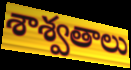
శాశ్వతాలు